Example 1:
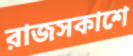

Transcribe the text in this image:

রাজসকাশে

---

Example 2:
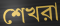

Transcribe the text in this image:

শেখরা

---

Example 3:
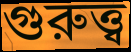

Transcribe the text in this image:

গুরুত্ত্ব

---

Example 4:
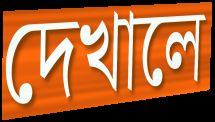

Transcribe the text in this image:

দেখালে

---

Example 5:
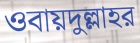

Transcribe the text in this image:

ওবায়দুল্লাহর